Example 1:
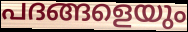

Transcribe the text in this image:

പദങ്ങളെയും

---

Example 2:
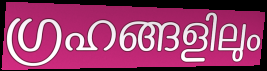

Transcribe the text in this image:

ഗ്രഹങ്ങളിലും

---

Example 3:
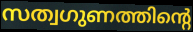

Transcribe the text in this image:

സത്വഗുണത്തിന്റെ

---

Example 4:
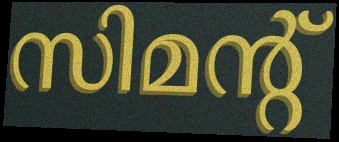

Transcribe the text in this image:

സിമന്റ്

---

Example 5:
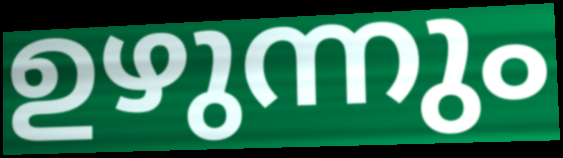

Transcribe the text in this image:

ഉഴുന്നും